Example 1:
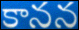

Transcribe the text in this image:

కానన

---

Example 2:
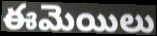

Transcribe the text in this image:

ఈమెయిలు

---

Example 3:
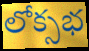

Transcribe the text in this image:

లోక్సభ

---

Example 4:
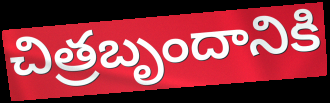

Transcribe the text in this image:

చిత్రబృందానికి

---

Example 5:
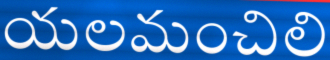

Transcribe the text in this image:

యలమంచిలి